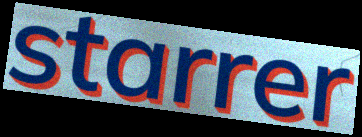
starrer